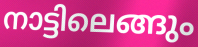
നാട്ടിലെങ്ങും